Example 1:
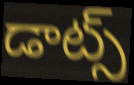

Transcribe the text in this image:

డాట్స్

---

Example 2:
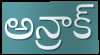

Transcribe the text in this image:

అన్రాక్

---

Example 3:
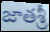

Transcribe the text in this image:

జాతశ్రీ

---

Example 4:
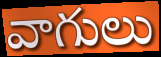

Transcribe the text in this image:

వాగులు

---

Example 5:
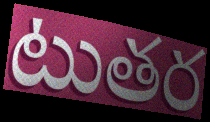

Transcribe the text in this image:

టుతర